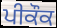
ਪੀਕੌਕ